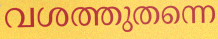
വശത്തുതന്നെ